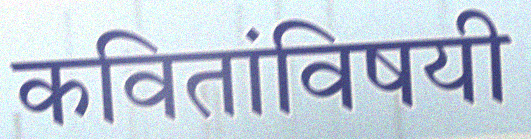
कवितांविषयी